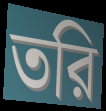
তরি